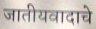
जातीयवादाचे